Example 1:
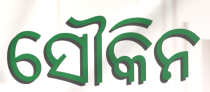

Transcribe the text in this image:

ସୌକିନ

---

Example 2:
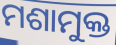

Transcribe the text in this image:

ମଶାମୁକ୍ତ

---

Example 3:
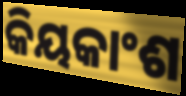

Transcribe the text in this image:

କିୟକାଂଶ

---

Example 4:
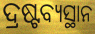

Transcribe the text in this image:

ଦ୍ରଷ୍ଟବ୍ୟସ୍ଥାନ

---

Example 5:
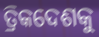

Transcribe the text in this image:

ତ୍ରିକଦେଶକୁ